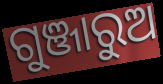
ଗୁଞ୍ଜାରୁଅ